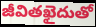
జీవితఖైదుతో